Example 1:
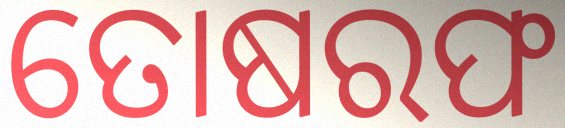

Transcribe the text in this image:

ତୋଷରଫ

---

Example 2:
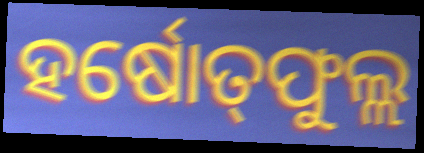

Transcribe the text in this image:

ହର୍ଷୋତ୍‌ଫୁଲ୍ଲ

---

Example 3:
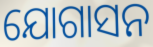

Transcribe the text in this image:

ଯୋଗାସନ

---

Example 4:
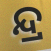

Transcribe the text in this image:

ନ୍ଦ୍ର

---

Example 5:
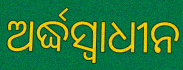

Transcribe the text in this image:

ଅର୍ଦ୍ଧସ୍ୱାଧୀନ